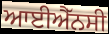
ਆਈਐੱਨਸੀ